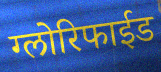
ग्लोरिफाईड